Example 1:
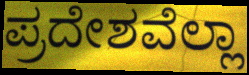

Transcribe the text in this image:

ಪ್ರದೇಶವೆಲ್ಲಾ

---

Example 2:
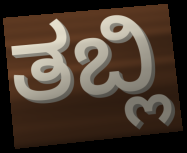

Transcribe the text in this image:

ತಬ್ಲಿ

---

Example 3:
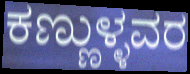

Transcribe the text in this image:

ಕಣ್ಣುಳ್ಳವರ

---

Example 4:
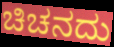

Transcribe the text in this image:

ಚಿಚನದು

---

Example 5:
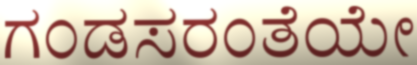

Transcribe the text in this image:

ಗಂಡಸರಂತೆಯೇ